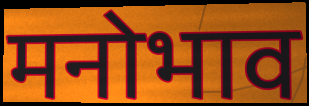
मनोभाव